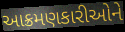
આક્રમણકારીઓને